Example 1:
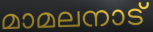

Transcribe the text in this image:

മാമലനാട്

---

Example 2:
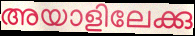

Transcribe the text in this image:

അയാളിലേക്കു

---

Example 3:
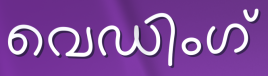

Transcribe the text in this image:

വെഡിംഗ്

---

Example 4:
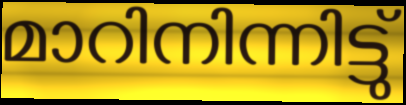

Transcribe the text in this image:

മാറിനിന്നിട്ടു്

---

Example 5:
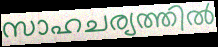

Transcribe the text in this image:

സാഹചര്യത്തിൽ